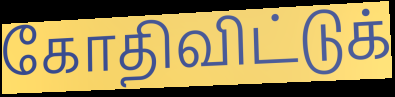
கோதிவிட்டுக்